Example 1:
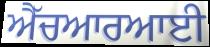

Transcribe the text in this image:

ਐੱਚਆਰਆਈ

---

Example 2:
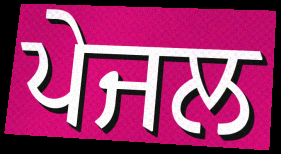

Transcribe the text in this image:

ਪੇਜਲ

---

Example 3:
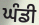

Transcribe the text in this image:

ਘੰਡੀ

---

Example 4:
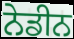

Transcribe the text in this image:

ਨੇਡੀਨ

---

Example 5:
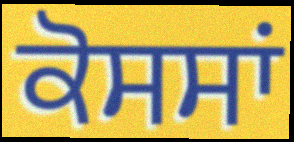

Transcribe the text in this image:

ਕੋਸਸਾਂ